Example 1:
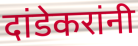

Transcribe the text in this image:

दांडेकरांनी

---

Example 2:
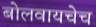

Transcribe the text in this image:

बोलवायचेच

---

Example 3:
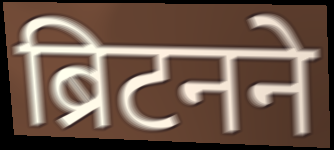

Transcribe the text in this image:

ब्रिटनने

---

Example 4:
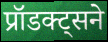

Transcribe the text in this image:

प्रॉडक्ट्सने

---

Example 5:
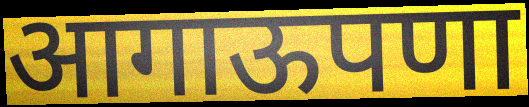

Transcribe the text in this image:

आगाऊपणा